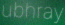
ubhray